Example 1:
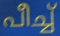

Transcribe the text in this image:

പീച്ച്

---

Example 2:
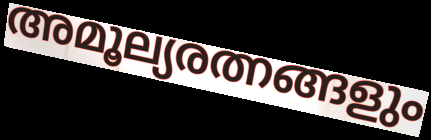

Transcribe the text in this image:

അമൂല്യരത്നങ്ങളും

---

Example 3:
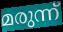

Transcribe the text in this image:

മരുന്ന്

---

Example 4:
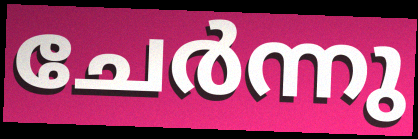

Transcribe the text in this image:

ചേർന്നു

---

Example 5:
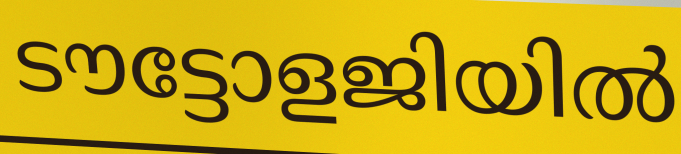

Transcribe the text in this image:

ടൗട്ടോളജിയിൽ